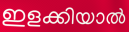
ഇളക്കിയാൽ